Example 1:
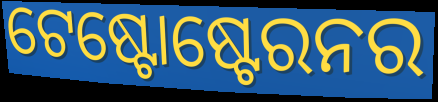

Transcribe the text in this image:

ଟେଷ୍ଟୋଷ୍ଟେରନର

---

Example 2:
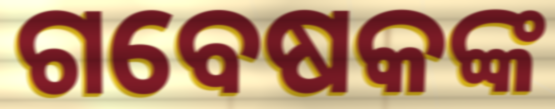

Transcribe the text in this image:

ଗବେଷକଙ୍କ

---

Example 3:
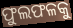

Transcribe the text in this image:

ଫୁଲଫଳକୁ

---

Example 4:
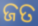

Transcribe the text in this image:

ଜତ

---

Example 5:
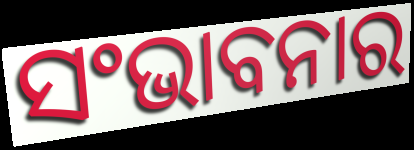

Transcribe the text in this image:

ସଂଭାବନାର